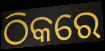
ଠିକରେ